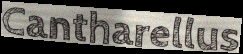
Cantharellus